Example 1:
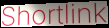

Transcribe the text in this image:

Shortlink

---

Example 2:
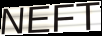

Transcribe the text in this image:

NEFT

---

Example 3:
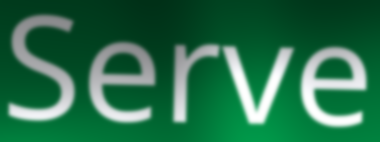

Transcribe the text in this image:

Serve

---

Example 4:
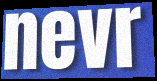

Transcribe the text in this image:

nevr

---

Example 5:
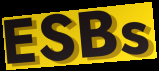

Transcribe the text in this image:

ESBs